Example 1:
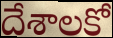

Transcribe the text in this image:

దేశాలకో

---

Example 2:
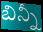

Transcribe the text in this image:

బిన్నీ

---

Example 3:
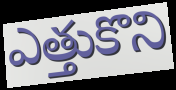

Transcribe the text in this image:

ఎత్తుకొని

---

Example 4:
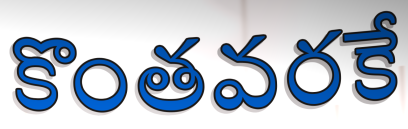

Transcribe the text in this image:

కొంతవరకే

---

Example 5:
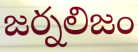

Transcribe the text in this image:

జర్నలిజం